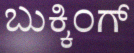
ಬುಕ್ಕಿಂಗ್